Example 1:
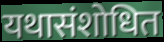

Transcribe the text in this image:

यथासंशोधित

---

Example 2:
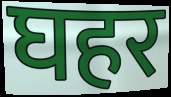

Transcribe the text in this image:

घहर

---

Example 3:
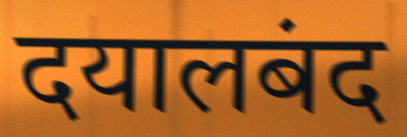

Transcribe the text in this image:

दयालबंद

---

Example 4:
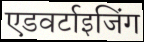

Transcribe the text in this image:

एडवर्टाइजिंग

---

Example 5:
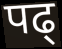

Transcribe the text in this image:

पढ्